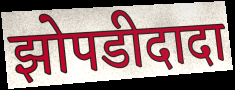
झोपडीदादा